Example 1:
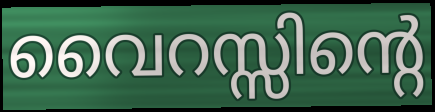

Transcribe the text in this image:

വൈറസ്സിന്റെ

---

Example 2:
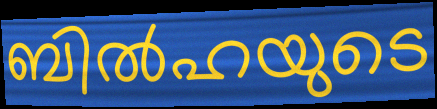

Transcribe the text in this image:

ബിൽഹയുടെ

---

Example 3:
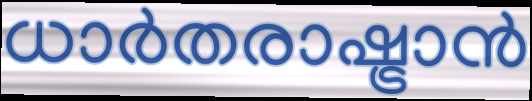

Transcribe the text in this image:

ധാർതരാഷ്ട്രാൻ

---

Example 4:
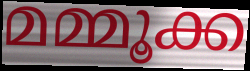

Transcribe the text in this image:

മമ്മൂക്ക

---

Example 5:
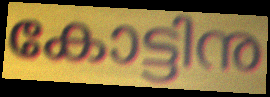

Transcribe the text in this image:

കോട്ടിനു